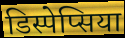
डिस्पेप्सिया